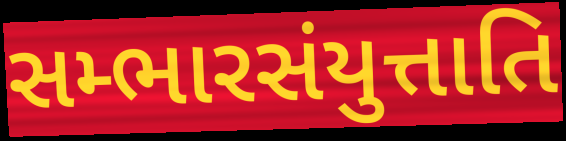
સમ્ભારસંયુત્તાતિ